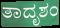
ತಾದೃಶಂ